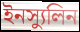
ইনস্যুলিন